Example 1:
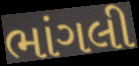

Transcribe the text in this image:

ભાંગલી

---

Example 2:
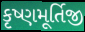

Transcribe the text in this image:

કૃષ્ણમૂર્તિજી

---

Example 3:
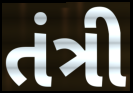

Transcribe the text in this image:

તંત્રી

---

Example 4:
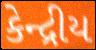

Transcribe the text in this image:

કેન્દ્રીય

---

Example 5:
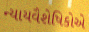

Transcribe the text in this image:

ન્યાયવૈશેષિકોએ